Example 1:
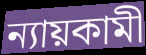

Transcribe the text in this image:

ন্যায়কামী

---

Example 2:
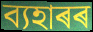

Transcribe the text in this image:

ব্যহাৰৰ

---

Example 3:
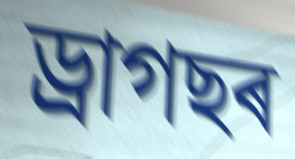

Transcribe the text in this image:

ড্ৰাগছৰ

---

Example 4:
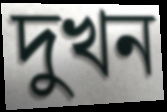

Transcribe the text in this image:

দুখন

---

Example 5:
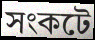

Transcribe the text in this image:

সংকটে